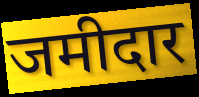
जमीदार